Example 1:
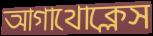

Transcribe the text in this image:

আগাথোক্লেস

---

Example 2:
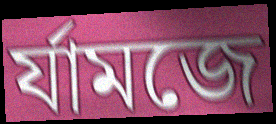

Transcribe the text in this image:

র্যামজে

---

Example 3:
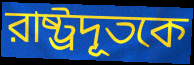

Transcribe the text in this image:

রাষ্ট্রদূতকে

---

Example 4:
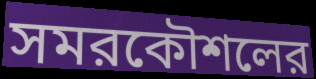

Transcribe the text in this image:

সমরকৌশলের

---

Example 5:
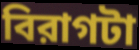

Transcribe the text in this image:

বিরাগটা